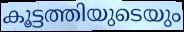
കൂട്ടത്തിയുടെയും